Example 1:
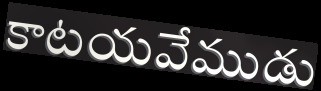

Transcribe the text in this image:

కాటయవేముడు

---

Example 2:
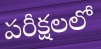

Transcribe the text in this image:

పరీక్షలలో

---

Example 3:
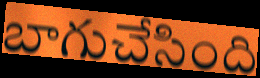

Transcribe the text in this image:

బాగుచేసింది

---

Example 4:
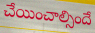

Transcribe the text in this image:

చేయించాల్సిందే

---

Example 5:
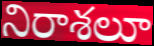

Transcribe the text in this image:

నిరాశలూ